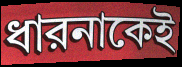
ধারনাকেই